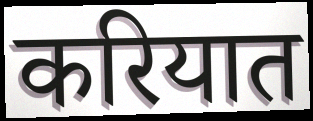
करियात